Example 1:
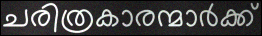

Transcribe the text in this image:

ചരിത്രകാരന്മാർക്ക്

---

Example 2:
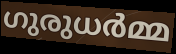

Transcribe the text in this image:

ഗുരുധർമ്മ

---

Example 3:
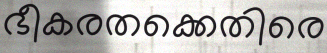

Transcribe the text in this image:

ഭീകരതക്കെതിരെ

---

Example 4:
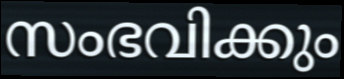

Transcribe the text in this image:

സംഭവിക്കും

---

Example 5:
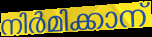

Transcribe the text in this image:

നിർമിക്കാന്